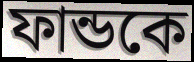
ফান্ডকে